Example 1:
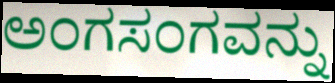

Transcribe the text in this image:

ಅಂಗಸಂಗವನ್ನು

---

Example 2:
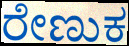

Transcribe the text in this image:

ರೇಣುಕ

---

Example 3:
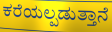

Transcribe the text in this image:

ಕರೆಯಲ್ಪಡುತ್ತಾನೆ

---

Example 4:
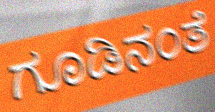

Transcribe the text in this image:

ಗೂಡಿನಂತೆ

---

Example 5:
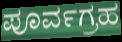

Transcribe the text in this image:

ಪೂರ್ವಗ್ರಹ